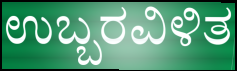
ಉಬ್ಬರವಿಳಿತ